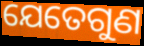
ଯେତେଗୁଣ